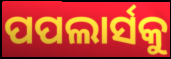
ପପଲାର୍ସକୁ